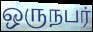
ஒருநபர்